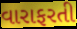
વારાફરતી